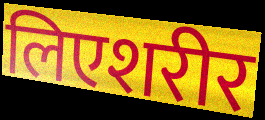
लिएशरीर